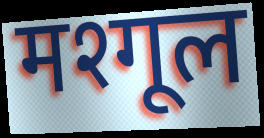
मश्गूल